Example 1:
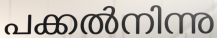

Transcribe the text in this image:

പക്കൽനിന്നു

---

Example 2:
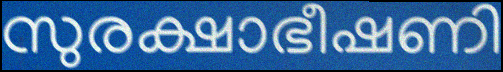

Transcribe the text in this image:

സുരക്ഷാഭീഷണി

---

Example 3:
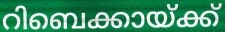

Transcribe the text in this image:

റിബെക്കായ്ക്ക്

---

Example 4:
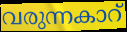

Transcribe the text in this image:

വരുന്നകാറ്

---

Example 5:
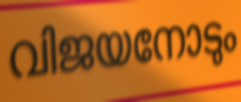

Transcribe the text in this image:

വിജയനോടും